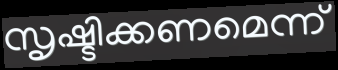
സൃഷ്ടിക്കണമെന്ന്